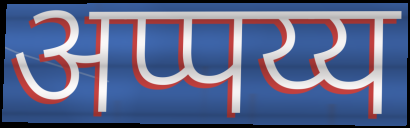
अप्पय्य